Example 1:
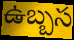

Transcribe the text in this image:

ఉబ్బస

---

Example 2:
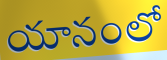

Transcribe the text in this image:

యానంలో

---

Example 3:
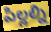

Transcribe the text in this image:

పిల్లల్ని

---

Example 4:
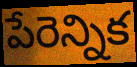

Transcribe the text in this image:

పేరెన్నిక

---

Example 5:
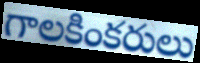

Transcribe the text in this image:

గాలకింకరులు